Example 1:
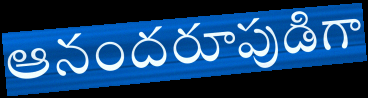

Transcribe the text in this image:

ఆనందరూపుడిగా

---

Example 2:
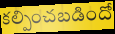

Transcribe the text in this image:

కల్పించబడిందో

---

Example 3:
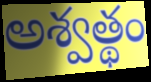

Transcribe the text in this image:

అశ్వత్థం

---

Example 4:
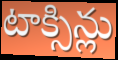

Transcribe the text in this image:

టాక్సిన్లు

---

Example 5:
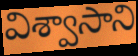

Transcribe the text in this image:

విశ్వాసాని